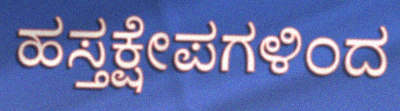
ಹಸ್ತಕ್ಷೇಪಗಳಿಂದ